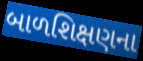
બાળશિક્ષણના